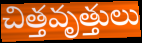
చిత్తవృత్తులు